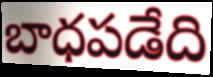
బాధపడేది